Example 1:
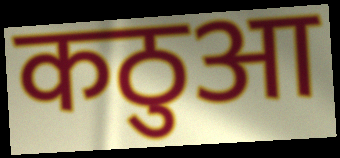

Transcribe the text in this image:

कठुआ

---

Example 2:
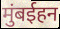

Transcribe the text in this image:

मुंबईहन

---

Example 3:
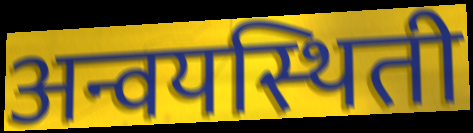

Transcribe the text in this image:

अन्वयस्थिती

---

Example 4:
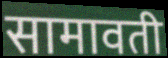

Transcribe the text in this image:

सामावती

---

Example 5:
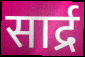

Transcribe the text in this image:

सार्द्र